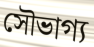
সৌভাগ্য